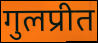
गुलप्रीत